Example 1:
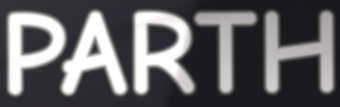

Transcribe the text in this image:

PARTH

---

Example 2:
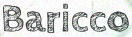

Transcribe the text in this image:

Baricco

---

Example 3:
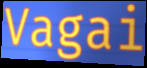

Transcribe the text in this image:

Vagai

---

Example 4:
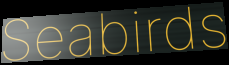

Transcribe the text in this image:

Seabirds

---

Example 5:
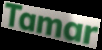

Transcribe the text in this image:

Tamar